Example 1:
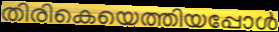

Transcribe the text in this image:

തിരികെയെത്തിയപ്പോൾ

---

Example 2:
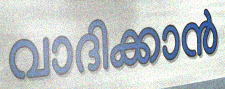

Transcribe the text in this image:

വാദിക്കാൻ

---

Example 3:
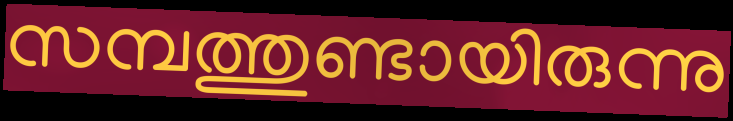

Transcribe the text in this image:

സമ്പത്തുണ്ടായിരുന്നു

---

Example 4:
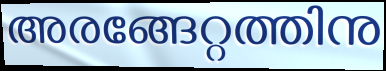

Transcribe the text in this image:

അരങ്ങേറ്റത്തിനു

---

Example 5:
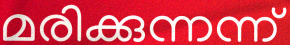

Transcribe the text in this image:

മരിക്കുന്നന്ന്